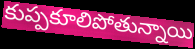
కుప్పకూలిపోతున్నాయి